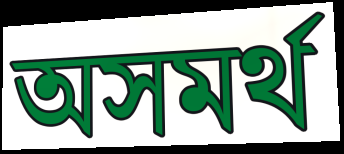
অসমর্থ